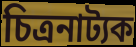
চিত্ৰনাট্যক